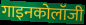
गाइनकोलॉजी